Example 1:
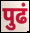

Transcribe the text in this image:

पुढं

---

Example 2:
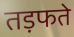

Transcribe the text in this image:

तड़फते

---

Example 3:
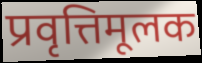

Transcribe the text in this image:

प्रवृत्तिमूलक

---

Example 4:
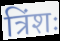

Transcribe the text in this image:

त्रिंशः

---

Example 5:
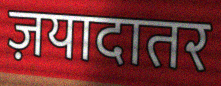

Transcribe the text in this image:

ज़यादातर